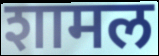
शामल